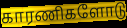
காரணிகளோடு